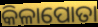
କିଳାପୋତା